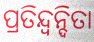
ପ୍ରତିନ୍ଦ୍ବନ୍ଦିତା